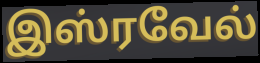
இஸ்ரவேல்